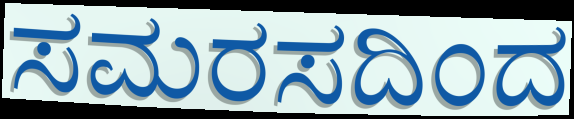
ಸಮರಸದಿಂದ